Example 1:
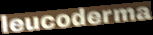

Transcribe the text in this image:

leucoderma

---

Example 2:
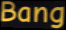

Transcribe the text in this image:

Bang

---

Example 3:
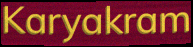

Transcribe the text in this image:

Karyakram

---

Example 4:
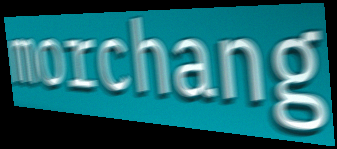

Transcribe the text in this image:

morchang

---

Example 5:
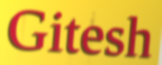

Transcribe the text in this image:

Gitesh